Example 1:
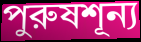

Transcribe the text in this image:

পুরুষশূন্য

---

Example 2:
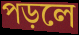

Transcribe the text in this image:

পড়লে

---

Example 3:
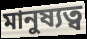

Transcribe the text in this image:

মানুষ্যত্ব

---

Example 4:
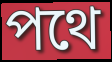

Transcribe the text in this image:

পথে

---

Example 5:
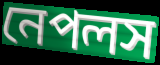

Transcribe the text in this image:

নেপলস